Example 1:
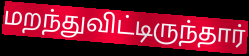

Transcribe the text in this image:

மறந்துவிட்டிருந்தார்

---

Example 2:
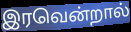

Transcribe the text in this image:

இரவென்றால்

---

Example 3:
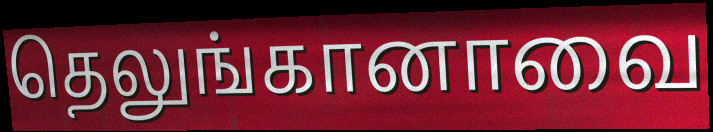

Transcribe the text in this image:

தெலுங்கானாவை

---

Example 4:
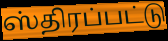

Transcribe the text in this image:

ஸ்திரப்பட்டு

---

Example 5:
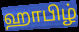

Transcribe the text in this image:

ஹாபிழ்